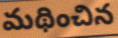
మథించిన